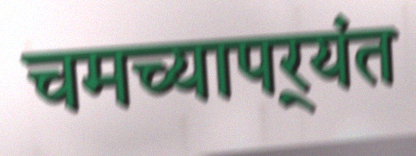
चमच्यापर्यंत